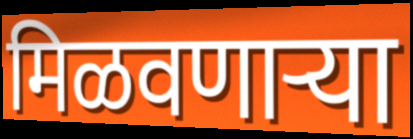
मिळवणाऱ्या